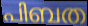
പിബത